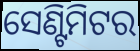
ସେଣ୍ଟିମିଟର